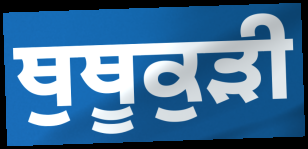
ਥੁਥੂਕੁੜੀ